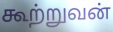
கூற்றுவன்